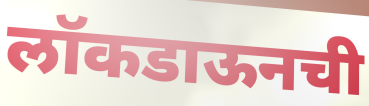
लॉकडाऊनची